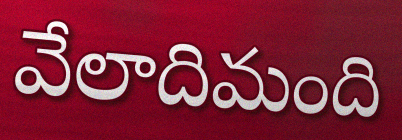
వేలాదిమంది